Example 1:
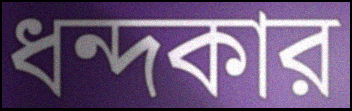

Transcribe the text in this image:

ধন্দকার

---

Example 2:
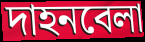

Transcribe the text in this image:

দাহনবেলা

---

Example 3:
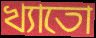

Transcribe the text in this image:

খ্যাতো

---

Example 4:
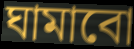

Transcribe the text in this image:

ঘামাবো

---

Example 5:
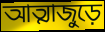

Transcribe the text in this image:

আত্মাজুড়ে